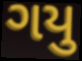
ગયુ